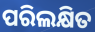
ପରିଲକ୍ଷିତ